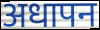
अधापन